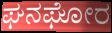
ಘನಘೋರ